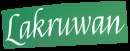
Lakruwan